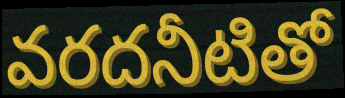
వరదనీటితో